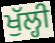
ਖੁੱਲ੍ਹੀ